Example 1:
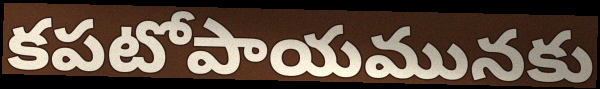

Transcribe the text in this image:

కపటోపాయమునకు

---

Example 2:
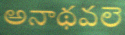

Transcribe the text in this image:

అనాథవలె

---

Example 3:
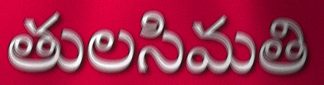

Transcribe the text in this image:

తులసిమతి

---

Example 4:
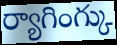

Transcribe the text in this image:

ర్యాగింగ్కు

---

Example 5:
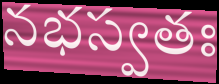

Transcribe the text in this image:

నభస్వతః